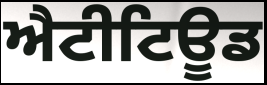
ਐਟੀਟਿਊਡ